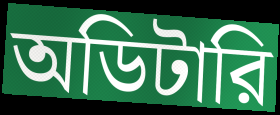
অডিটারি